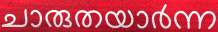
ചാരുതയാർന്ന